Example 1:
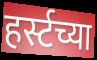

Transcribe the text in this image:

हर्स्टच्या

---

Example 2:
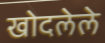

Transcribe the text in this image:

खोदलेले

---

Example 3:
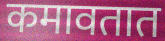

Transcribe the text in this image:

कमावतात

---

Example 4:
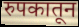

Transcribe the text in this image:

रुपकातून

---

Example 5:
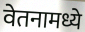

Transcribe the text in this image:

वेतनामध्ये